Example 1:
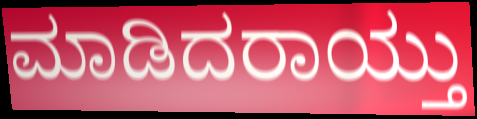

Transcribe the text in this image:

ಮಾಡಿದರಾಯ್ತು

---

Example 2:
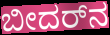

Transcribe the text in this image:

ಬೀದರ್‌ನ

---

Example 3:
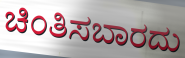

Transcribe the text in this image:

ಚಿಂತಿಸಬಾರದು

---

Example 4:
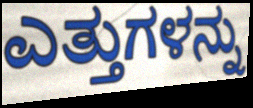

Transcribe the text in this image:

ಎತ್ತುಗಳನ್ನು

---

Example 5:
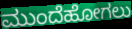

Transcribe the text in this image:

ಮುಂದೆಹೋಗಲು